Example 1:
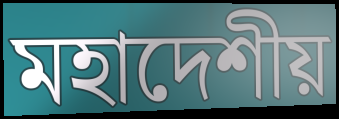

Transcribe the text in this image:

মহাদেশীয়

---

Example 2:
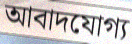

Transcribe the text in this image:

আবাদযোগ্য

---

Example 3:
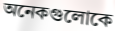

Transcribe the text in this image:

অনেকগুলোকে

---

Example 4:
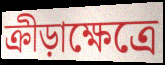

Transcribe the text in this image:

ক্রীড়াক্ষেত্রে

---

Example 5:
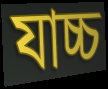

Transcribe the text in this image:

যাচ্চ